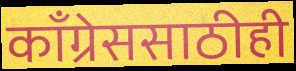
काँग्रेससाठीही